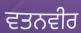
ਵਤਨਵੀਰ